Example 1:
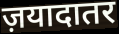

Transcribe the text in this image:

ज़यादातर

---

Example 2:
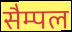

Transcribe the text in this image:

सैम्पल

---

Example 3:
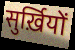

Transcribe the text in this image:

सुर्ख़ियों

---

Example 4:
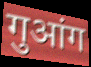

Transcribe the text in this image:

गुआंग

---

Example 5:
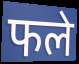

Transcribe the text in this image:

फले